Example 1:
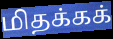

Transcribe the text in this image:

மிதக்கக்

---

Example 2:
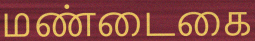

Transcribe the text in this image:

மண்டைகை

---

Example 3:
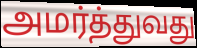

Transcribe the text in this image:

அமர்த்துவது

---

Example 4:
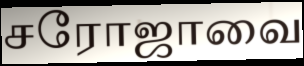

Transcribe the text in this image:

சரோஜாவை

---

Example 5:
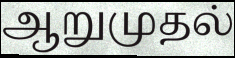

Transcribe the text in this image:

ஆறுமுதல்